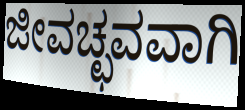
ಜೀವಚ್ಛವವಾಗಿ